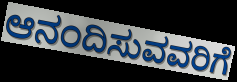
ಆನಂದಿಸುವವರಿಗೆ